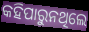
କହିପାରୁନଥିଲେ